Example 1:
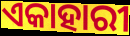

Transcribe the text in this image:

ଏକାହାରୀ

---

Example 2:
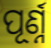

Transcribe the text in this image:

ପୂର୍ଣ୍ନ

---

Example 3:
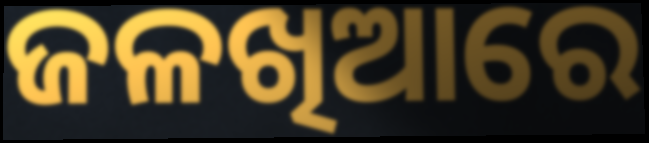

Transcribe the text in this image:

ଜଳଖିଆରେ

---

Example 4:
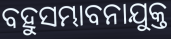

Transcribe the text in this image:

ବହୁସମ୍ଭାବନାଯୁକ୍ତ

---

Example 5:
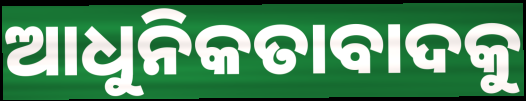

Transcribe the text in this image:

ଆଧୁନିକତାବାଦକୁ